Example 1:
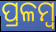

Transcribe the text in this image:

ପ୍ରଳମ୍ବ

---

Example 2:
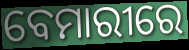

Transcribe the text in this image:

ବେମାରୀରେ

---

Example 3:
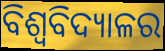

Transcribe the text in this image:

ବିଶ୍ୱବିଦ୍ୟାଳର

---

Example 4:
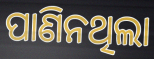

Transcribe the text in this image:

ପାଣିନଥିଲା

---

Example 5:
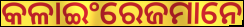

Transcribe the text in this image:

କଳାଇଂରେଜମାନେ